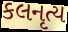
કલનૃત્ય